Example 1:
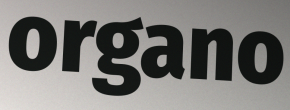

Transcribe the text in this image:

organo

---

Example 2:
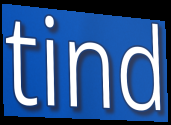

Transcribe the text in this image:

tind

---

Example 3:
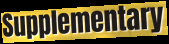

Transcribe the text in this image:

Supplementary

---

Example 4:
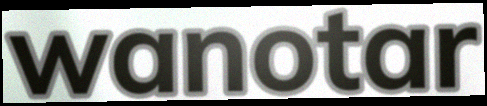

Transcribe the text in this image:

wanotar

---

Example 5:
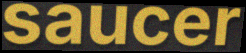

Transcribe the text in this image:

saucer